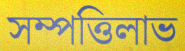
সম্পত্তিলাভ